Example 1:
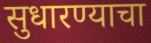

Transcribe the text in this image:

सुधारण्याचा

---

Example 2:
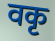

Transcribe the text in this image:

वकृ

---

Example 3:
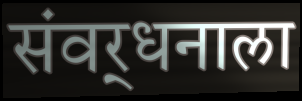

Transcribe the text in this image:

संवर्धनाला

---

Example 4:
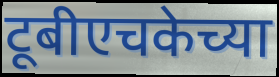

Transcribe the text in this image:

टूबीएचकेच्या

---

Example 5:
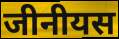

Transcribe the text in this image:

जीनीयस